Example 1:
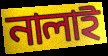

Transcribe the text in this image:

নালাই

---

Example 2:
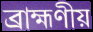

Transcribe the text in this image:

ব্রাহ্মণীয়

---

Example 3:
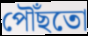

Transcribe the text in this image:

পৌঁছতো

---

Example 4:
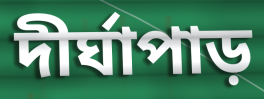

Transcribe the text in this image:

দীর্ঘাপাড়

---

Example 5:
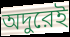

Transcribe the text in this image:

অদুরেই